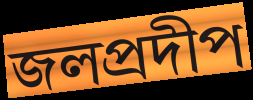
জলপ্রদীপ